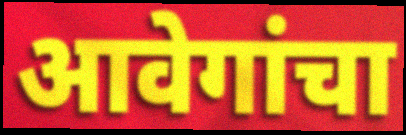
आवेगांचा